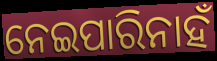
ନେଇପାରିନାହଁ